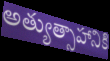
అత్యుత్సాహానికి